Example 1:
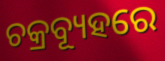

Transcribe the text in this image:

ଚକ୍ରବ୍ୟୂହରେ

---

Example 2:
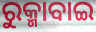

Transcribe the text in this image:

ରୁକ୍ମାବାଇ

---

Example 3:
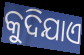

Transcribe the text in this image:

କୁଦିଯାଏ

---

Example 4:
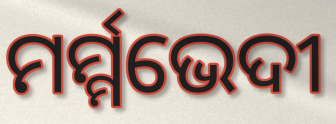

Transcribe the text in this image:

ମର୍ମ୍ମଭେଦୀ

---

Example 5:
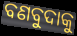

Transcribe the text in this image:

ବଣବୁଦାକୁ